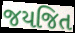
જયજિત